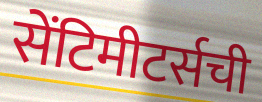
सेंटिमीटर्सची